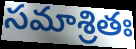
సమాశ్రితః